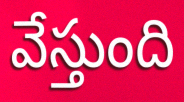
వేస్తుంది